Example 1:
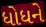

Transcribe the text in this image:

ધોધને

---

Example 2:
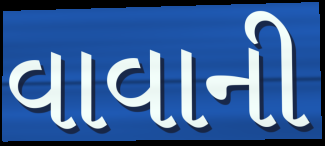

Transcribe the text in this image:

વાવાની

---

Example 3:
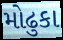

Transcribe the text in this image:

મોઢુકા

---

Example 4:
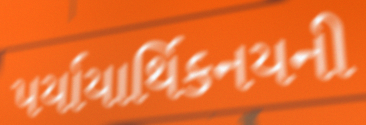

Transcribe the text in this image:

પર્યાયાર્થિકનયની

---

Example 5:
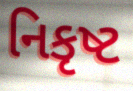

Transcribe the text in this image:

નિકૃષ્ટ